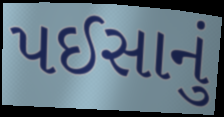
પઈસાનું